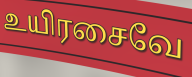
உயிரசைவே